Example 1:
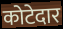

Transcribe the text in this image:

कोटेदार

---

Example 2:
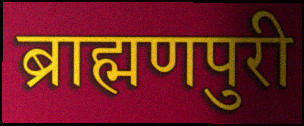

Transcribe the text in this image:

ब्राह्मणपुरी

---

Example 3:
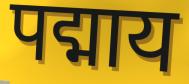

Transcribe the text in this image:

पद्माय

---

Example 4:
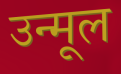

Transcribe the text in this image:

उन्मूल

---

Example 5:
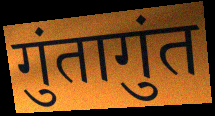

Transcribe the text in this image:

गुंतागुंत